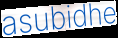
asubidhe